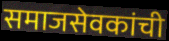
समाजसेवकांची